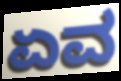
ಏವ